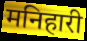
मनिहारी